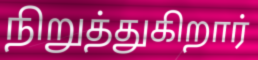
நிறுத்துகிறார்